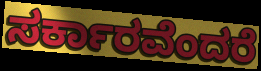
ಸರ್ಕಾರವೆಂದರೆ